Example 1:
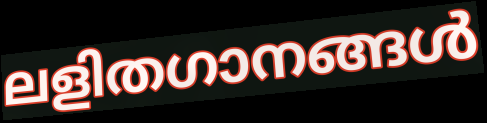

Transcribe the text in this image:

ലളിതഗാനങ്ങൾ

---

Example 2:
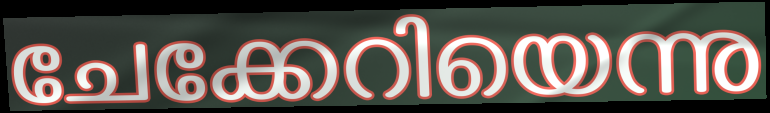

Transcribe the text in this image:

ചേക്കേറിയെന്നു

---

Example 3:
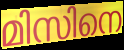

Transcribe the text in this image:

മിസിനെ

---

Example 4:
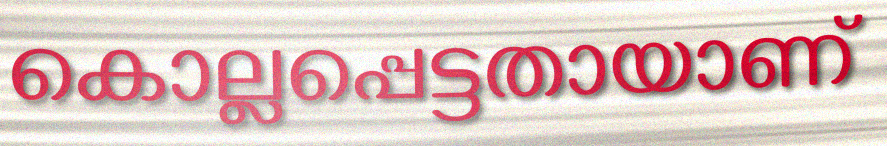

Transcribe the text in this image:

കൊല്ലപ്പെട്ടതായാണ്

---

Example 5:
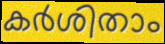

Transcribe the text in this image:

കർശിതാം